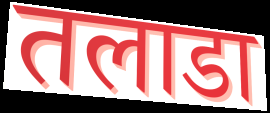
तलाडा